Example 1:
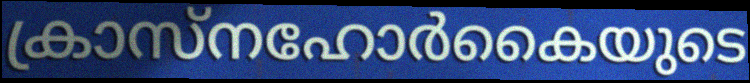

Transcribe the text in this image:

ക്രാസ്നഹോർകൈയുടെ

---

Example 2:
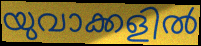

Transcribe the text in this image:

യുവാക്കളിൽ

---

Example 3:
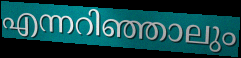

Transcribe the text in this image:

എന്നറിഞ്ഞാലും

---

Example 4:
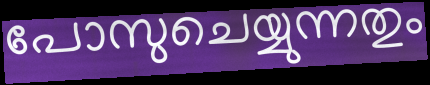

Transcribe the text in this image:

പോസുചെയ്യുന്നതും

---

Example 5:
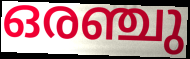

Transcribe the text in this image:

ഒരഞ്ചു